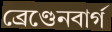
ব্ৰেণ্ডেনবাৰ্গ